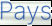
Pays